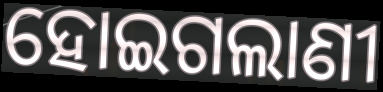
ହୋଇଗଲାଣୀ